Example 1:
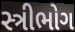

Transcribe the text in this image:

સ્ત્રીભોગ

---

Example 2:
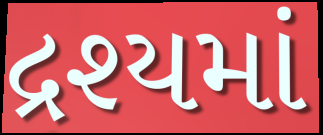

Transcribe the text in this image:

દ્રશ્યમાં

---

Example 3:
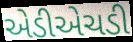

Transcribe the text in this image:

એડીએચડી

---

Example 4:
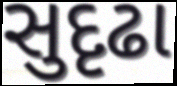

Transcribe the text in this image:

સુદૃઢા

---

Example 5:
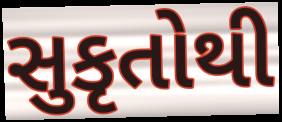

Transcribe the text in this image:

સુકૃતોથી